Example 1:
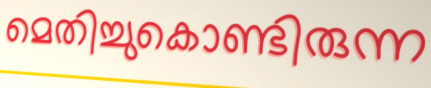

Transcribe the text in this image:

മെതിച്ചുകൊണ്ടിരുന്ന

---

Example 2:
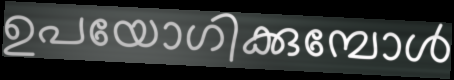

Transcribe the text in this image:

ഉപയോഗിക്കുമ്പോൾ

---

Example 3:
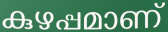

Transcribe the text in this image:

കുഴപ്പമാണ്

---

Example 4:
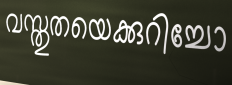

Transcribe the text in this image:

വസ്തുതയെക്കുറിച്ചോ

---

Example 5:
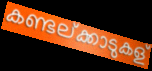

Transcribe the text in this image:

കണ്ടല്ക്കാടുകള്